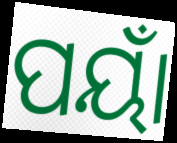
ପୟାଁ